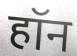
हॉन